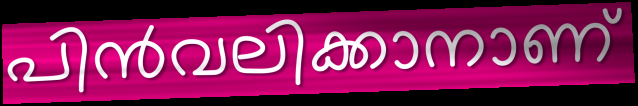
പിൻവലിക്കാനാണ്